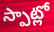
స్పాట్లో